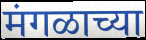
मंगळाच्या